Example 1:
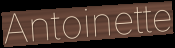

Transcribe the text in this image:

Antoinette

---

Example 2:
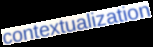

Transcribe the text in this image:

contextualization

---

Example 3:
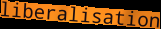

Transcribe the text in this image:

liberalisation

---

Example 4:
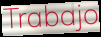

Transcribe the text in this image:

Trabajo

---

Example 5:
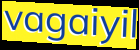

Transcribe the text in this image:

vagaiyil